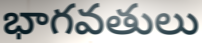
భాగవతులు